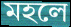
মহলে